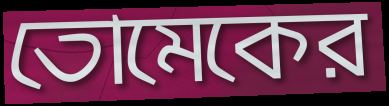
তোমেকের